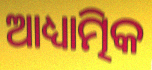
ଆଧ୍ୟାତ୍ମିକ